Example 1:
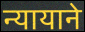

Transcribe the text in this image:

न्यायाने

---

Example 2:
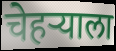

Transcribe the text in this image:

चेहऱ्याला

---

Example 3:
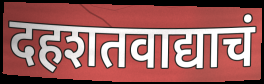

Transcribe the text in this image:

दहशतवाद्याचं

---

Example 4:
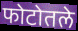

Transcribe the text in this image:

फोटोतले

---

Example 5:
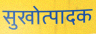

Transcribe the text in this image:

सुखोत्पादक